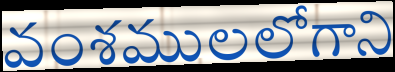
వంశములలోగాని